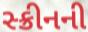
સ્ક્રીનની